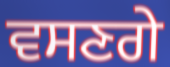
ਵਸਣਗੇ